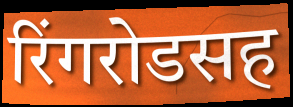
रिंगरोडसह